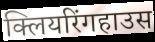
क्लियरिंगहाउस